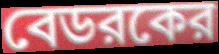
বেডরকের